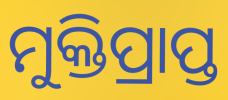
ମୁକ୍ତିପ୍ରାପ୍ତ